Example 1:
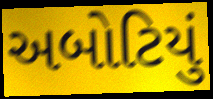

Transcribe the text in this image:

અબોટિયું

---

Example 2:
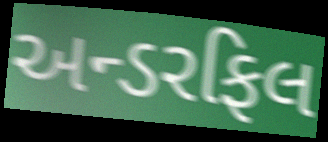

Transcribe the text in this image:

અન્ડરફિલ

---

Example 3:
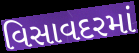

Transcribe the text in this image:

વિસાવદરમાં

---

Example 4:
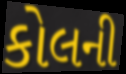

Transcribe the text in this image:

કોલની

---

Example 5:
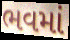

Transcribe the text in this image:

ભવમાં